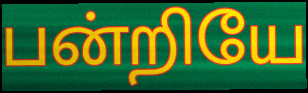
பன்றியே